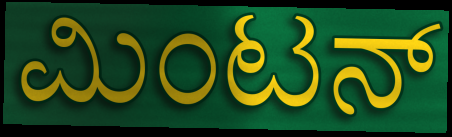
ಮಿಂಟನ್